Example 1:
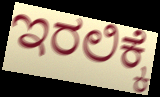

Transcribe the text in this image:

ಇರಲಿಕ್ಕೆ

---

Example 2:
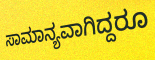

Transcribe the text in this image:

ಸಾಮಾನ್ಯವಾಗಿದ್ದರೂ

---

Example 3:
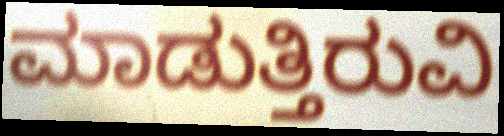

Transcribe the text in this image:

ಮಾಡುತ್ತಿರುವಿ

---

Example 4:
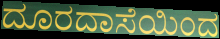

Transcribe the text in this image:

ದೂರದಾಸೆಯಿಂದ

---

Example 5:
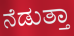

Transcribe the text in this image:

ನೆಡುತ್ತಾ